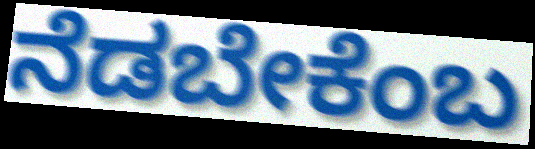
ನೆಡಬೇಕೆಂಬ